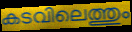
കടവിലെത്തും